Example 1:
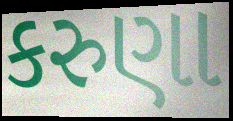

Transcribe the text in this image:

કરુણા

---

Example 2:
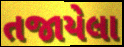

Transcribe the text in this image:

તજાયેલા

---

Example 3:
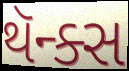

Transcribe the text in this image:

થૅન્ક્સ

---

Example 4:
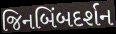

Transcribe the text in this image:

જિનબિંબદર્શન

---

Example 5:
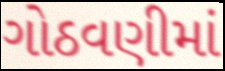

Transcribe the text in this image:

ગોઠવણીમાં